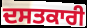
ਦਸਤਕਾਰੀ